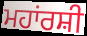
ਮਹਾਂਰਸ਼ੀ